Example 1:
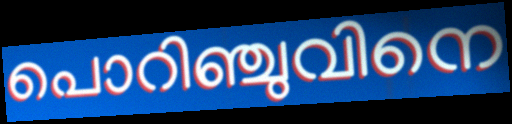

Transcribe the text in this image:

പൊറിഞ്ചുവിനെ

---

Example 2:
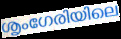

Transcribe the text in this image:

ശൃംഗേരിയിലെ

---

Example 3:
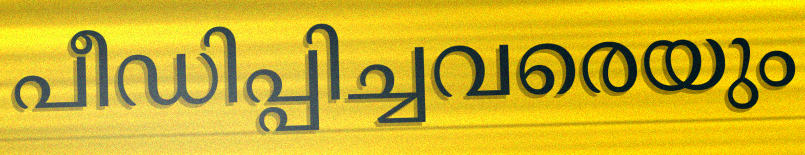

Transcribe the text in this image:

പീഡിപ്പിച്ചവരെയും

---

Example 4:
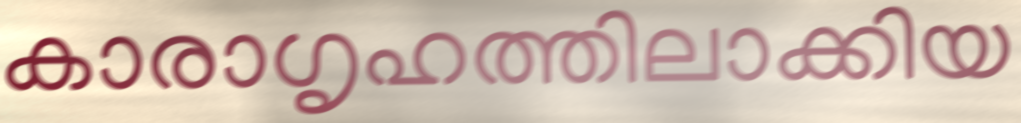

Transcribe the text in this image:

കാരാഗൃഹത്തിലാക്കിയ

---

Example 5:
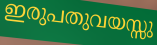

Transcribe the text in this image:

ഇരുപതുവയസ്സു